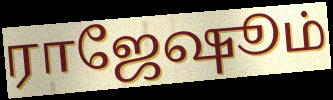
ராஜேஷூம்